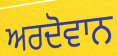
ਅਰਦੋਵਾਨ